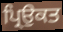
ਪ੍ਰਿਉਕਤ